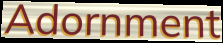
Adornment